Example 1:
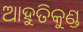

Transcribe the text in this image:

ଆହୁତିକୁଣ୍ଡ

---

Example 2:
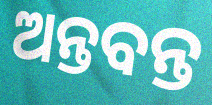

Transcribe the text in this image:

ଅନ୍ତବନ୍ତ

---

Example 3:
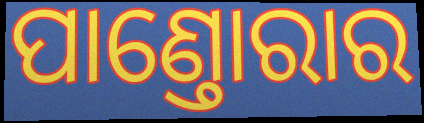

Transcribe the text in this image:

ପାଣ୍ତୋରାର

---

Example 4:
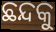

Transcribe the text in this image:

ଛନ୍ଦକୁ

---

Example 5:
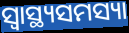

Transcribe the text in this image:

ସ୍ୱାସ୍ଥ୍ୟସମସ୍ୟା